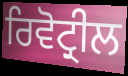
ਰਿਵੋਟ੍ਰੀਲ